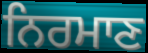
ਨਿਰਮਾਣ